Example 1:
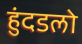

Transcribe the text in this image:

हुंदडलो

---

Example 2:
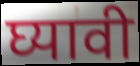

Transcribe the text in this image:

घ्यावी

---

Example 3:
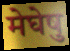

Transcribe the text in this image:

मेघेषु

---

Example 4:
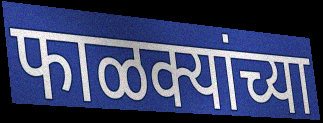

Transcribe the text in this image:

फाळक्यांच्या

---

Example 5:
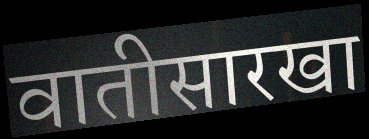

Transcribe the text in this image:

वातीसारखा